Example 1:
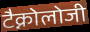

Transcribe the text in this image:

टैक्नोलोजी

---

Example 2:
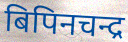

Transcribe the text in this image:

बिपिनचन्द्र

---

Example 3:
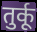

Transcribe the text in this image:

तुर्कू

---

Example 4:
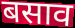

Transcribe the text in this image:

बसाव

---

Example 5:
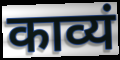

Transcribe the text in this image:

काव्यं